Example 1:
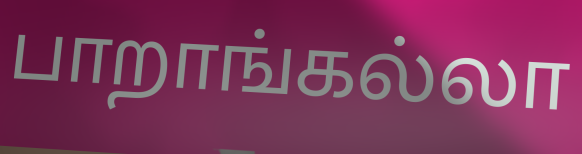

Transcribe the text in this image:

பாறாங்கல்லா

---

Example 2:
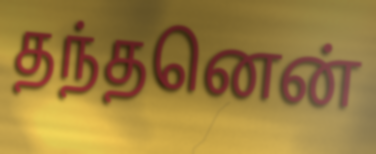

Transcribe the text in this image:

தந்தனென்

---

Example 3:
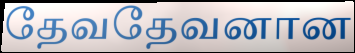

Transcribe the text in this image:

தேவதேவனான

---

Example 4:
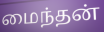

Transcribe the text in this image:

மைந்தன்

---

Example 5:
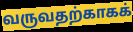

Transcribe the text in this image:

வருவதற்காகக்